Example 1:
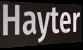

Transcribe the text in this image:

Hayter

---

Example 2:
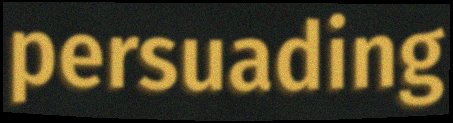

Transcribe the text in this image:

persuading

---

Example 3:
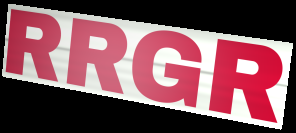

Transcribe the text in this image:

RRGR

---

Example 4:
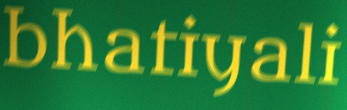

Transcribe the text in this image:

bhatiyali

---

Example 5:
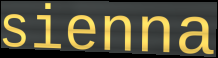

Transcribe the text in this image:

sienna